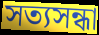
সত্যসন্ধা